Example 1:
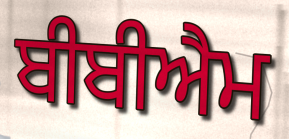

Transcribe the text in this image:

ਬੀਬੀਐਮ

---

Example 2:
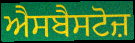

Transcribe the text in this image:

ਐਸਬੈਸਟੋਜ਼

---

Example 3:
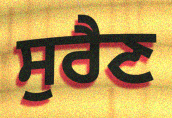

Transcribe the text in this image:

ਸੁਰੈਣ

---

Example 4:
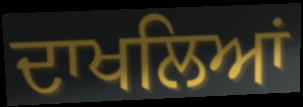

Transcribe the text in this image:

ਦਾਖਲਿਆਂ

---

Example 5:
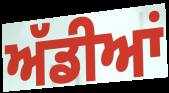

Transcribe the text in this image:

ਅੱਡੀਆਂ